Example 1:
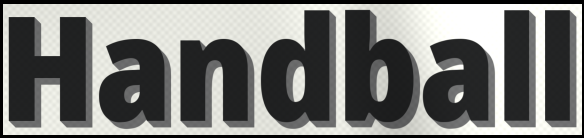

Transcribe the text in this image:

Handball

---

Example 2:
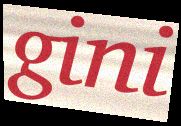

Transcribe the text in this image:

gini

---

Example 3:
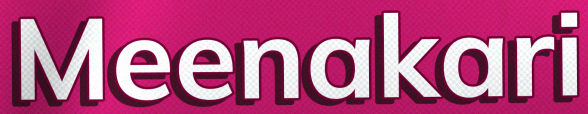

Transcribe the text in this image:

Meenakari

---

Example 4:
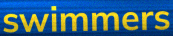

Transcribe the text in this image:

swimmers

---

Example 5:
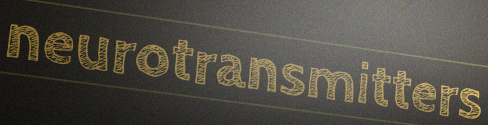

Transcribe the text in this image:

neurotransmitters